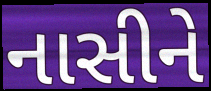
નાસીને